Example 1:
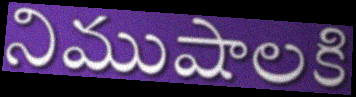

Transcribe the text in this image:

నిముషాలకి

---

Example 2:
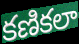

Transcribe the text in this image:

కణికలా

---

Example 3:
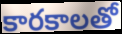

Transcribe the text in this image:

కారకాలతో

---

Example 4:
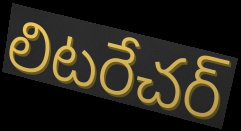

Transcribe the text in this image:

లిటరేచర్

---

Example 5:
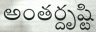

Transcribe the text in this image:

అంతర్దృష్టి